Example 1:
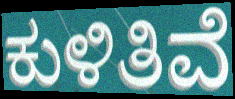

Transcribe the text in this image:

ಕುಳಿತಿವೆ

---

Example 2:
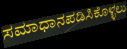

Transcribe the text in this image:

ಸಮಾಧಾನಪಡಿಸಿಕೊಳ್ಳಲು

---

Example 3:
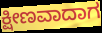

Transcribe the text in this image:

ಕ್ಷೀಣವಾದಾಗ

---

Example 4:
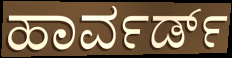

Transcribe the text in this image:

ಹಾರ್ವರ್ಡ್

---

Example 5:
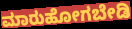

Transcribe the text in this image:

ಮಾರುಹೋಗಬೇಡಿ